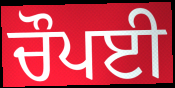
ਚੌਪਈ